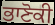
ਭਾਣੋਕੀ